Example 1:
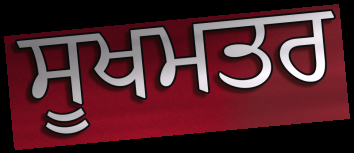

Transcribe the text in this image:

ਸੂਖਮਤਰ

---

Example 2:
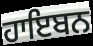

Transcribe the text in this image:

ਹਾਇਬਨ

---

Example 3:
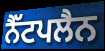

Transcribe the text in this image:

ਨੈੱਟਪਲੈਨ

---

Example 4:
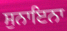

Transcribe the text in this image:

ਸੁਨਾਇਨਾ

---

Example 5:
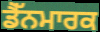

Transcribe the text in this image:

ਡੈੱਨਮਾਰਕ